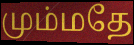
மும்மதே